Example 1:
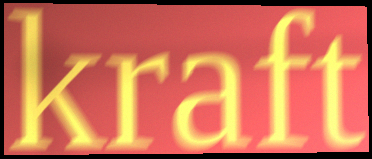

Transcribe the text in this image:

kraft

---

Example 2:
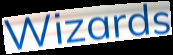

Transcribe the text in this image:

Wizards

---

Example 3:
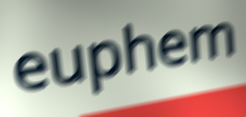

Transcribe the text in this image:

euphem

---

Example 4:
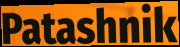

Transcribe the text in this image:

Patashnik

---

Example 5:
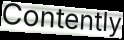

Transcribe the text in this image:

Contently